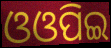
ଓଓପିଇ